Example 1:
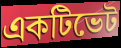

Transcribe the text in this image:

একটিভেট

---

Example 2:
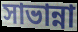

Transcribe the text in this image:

সাভান্না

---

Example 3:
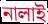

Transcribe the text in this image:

নালাই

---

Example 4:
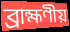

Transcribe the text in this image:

ব্রাহ্মণীয়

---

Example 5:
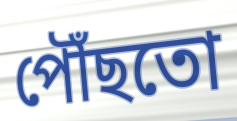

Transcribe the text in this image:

পৌঁছতো